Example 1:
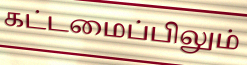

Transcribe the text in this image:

கட்டமைப்பிலும்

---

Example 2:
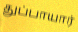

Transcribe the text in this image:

துப்பாயார்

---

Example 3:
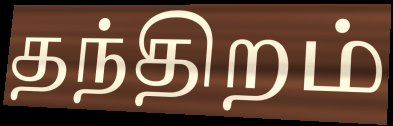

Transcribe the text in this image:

தந்திறம்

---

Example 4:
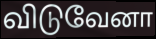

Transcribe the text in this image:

விடுவேனா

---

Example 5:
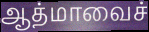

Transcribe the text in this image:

ஆத்மாவைச்